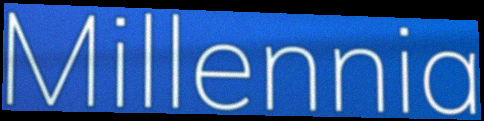
Millennia